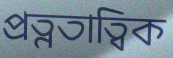
প্রত্নতাত্বিক